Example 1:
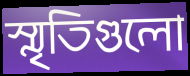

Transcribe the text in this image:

স্মৃতিগুলো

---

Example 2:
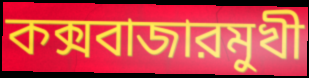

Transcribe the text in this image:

কক্সবাজারমুখী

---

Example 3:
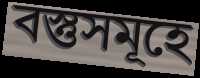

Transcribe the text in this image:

বস্তুসমূহে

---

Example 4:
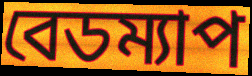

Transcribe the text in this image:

বেডম্যাপ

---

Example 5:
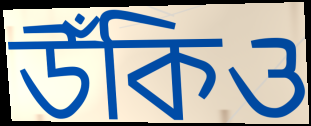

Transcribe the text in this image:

উঁকিও